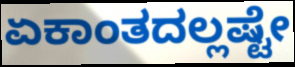
ಏಕಾಂತದಲ್ಲಷ್ಟೇ